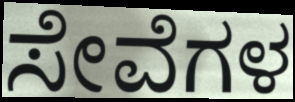
ಸೇವೆಗಳ